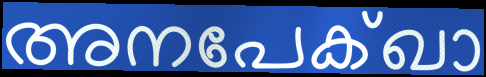
അനപേക്ഖാ